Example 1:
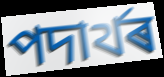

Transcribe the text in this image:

পদাৰ্থৰ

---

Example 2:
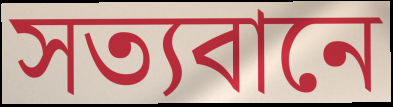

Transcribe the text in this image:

সত্যবানে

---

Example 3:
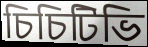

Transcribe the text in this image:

চিচিটিভি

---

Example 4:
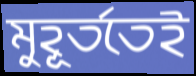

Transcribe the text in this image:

মুহূৰ্ততেই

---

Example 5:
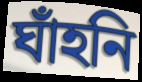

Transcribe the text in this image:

ঘাঁহনি